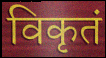
विकृतं